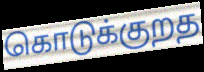
கொடுக்குறத